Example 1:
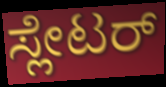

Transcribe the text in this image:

ಸ್ಲೇಟರ್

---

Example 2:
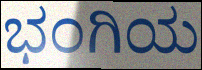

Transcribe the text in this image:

ಭಂಗಿಯ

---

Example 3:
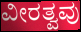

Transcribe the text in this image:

ವೀರತ್ವವು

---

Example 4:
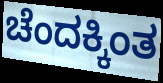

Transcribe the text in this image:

ಚೆಂದಕ್ಕಿಂತ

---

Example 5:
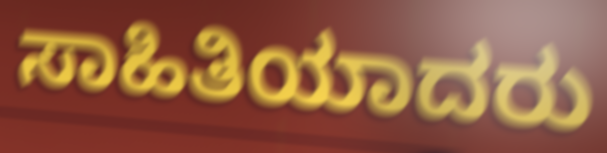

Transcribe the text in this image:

ಸಾಹಿತಿಯಾದರು